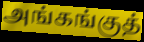
அங்கங்குத்